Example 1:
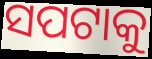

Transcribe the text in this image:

ସପଟାକୁ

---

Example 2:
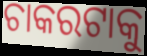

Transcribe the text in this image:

ଚାକରଟାକୁ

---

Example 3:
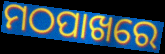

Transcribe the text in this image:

ମଠପାଖରେ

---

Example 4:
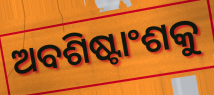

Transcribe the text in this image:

ଅବଶିଷ୍ଟାଂଶକୁ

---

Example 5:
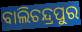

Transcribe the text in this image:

ବାଲିଚନ୍ଦ୍ରପୁର